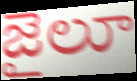
జైలూ